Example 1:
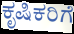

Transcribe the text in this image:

ಕೃಷಿಕರಿಗೆ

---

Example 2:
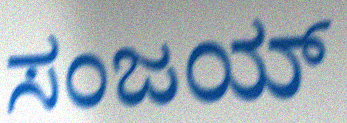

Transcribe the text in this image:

ಸಂಜಯ್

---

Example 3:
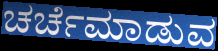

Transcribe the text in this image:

ಚರ್ಚೆಮಾಡುವ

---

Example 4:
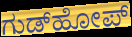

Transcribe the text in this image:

ಗುಡ್‌ಹೋಪ್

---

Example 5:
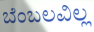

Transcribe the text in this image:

ಬೆಂಬಲವಿಲ್ಲ